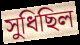
সুধিছিল